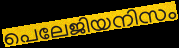
പെലേജിയനിസം